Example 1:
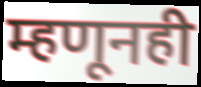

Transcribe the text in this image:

म्हणूनही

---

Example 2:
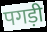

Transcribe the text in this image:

पगड़ी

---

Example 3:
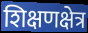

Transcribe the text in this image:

शिक्षणक्षेत्र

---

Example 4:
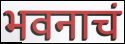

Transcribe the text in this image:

भवनाचं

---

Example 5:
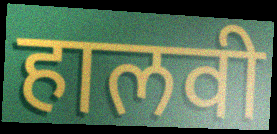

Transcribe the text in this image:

हालवी